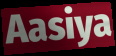
Aasiya